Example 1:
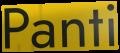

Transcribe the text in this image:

Panti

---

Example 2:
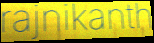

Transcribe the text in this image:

rajnikanth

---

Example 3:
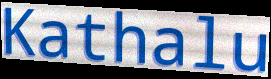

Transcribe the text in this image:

Kathalu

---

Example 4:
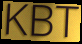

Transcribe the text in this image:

KBT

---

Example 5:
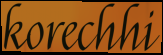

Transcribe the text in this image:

korechhi